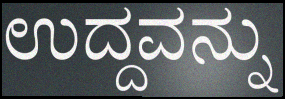
ಉದ್ದವನ್ನು